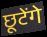
छूटेंगे